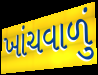
ખાંચવાળું